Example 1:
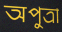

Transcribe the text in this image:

অপুত্রা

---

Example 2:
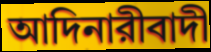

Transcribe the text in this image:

আদিনারীবাদী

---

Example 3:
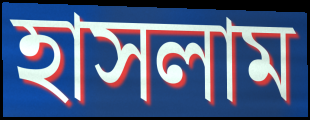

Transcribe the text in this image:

হাসলাম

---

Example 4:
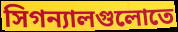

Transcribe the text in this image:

সিগন্যালগুলোতে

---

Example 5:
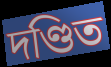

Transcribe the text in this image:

দণ্ডিত